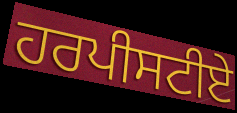
ਹਰਪੀਸਟੀਏ